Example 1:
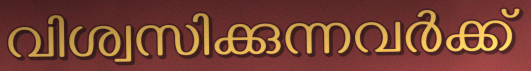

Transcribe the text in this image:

വിശ്വസിക്കുന്നവർക്ക്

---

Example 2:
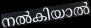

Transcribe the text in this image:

നൽകിയാൽ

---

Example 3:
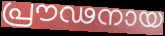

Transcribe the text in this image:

പ്രൗഢനായ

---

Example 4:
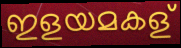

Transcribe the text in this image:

ഇളയമകള്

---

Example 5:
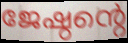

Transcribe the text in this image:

ജേഷ്ഠന്റെ